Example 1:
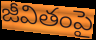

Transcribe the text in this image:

జీవితంపై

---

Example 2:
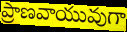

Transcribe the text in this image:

ప్రాణవాయువుగా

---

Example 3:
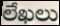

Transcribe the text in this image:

లేఖలు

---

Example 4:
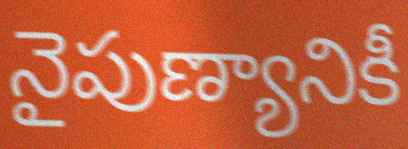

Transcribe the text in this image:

నైపుణ్యానికీ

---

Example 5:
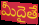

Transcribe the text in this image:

మీదైతే